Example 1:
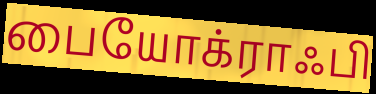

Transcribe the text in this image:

பையோக்ராஃபி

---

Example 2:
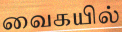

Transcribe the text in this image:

வைகயில்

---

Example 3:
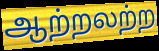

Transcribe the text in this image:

ஆற்றலற்ற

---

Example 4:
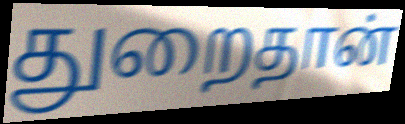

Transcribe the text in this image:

துறைதான்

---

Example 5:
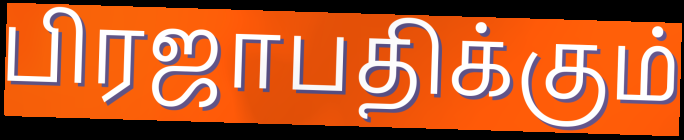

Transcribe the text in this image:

பிரஜாபதிக்கும்